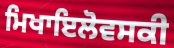
ਮਿਖਾਇਲੋਵਸਕੀ